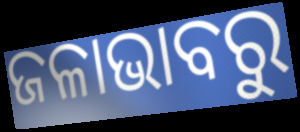
ଜଳାଭାବରୁ